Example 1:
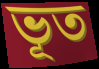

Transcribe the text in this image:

ভূত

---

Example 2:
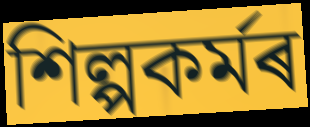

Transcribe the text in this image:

শিল্পকৰ্মৰ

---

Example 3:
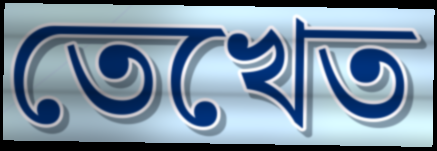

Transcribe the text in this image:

তেখেত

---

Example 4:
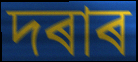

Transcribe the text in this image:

দৰাৰ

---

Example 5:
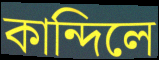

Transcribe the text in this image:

কান্দিলে